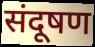
संदूषण